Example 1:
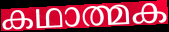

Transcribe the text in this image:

കഥാത്മക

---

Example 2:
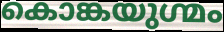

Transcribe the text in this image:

കൊങ്കയുഗ്മം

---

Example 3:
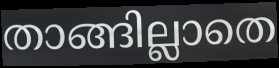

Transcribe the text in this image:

താങ്ങില്ലാതെ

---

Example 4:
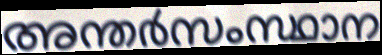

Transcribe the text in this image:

അന്തർസംസ്ഥാന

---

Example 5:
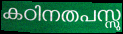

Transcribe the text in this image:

കഠിനതപസ്സു